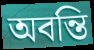
অবন্তি